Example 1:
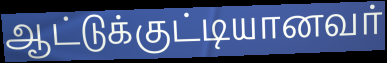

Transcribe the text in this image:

ஆட்டுக்குட்டியானவர்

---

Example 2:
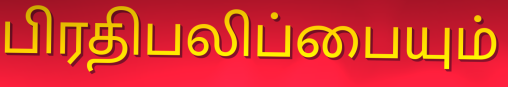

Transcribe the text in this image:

பிரதிபலிப்பையும்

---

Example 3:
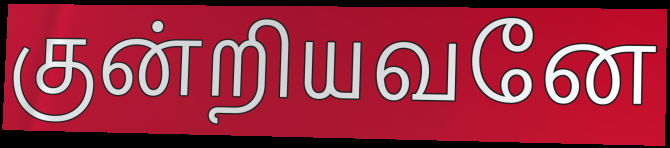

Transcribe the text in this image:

குன்றியவனே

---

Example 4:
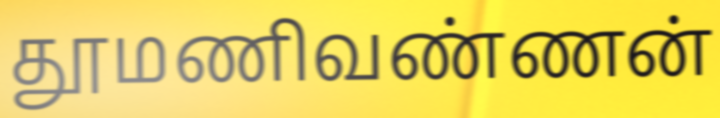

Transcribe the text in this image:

தூமணிவண்ணன்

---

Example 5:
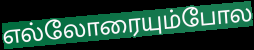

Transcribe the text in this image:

எல்லோரையும்போல